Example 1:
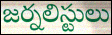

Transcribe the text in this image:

జర్నలిస్టులు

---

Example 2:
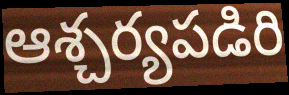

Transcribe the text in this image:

ఆశ్చర్యపడిరి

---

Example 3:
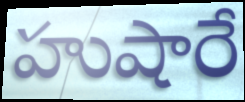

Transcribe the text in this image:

హుషారే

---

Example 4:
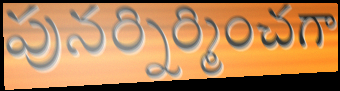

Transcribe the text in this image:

పునర్నిర్మించగా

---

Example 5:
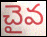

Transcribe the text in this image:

చైవ